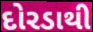
દોરડાથી